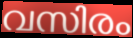
വസിരം